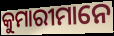
କୁମାରୀମାନେ